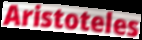
Aristoteles